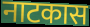
नाटकास